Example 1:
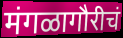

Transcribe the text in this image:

मंगळागौरीचं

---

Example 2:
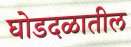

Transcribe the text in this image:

घोडदळातील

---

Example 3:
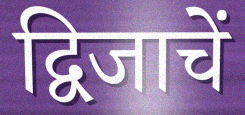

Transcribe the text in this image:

द्विजाचें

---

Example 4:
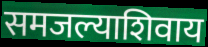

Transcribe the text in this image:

समजल्याशिवाय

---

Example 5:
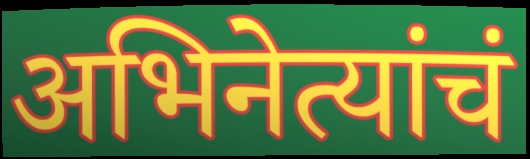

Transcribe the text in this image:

अभिनेत्यांचं